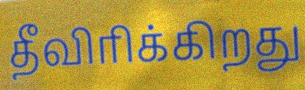
தீவிரிக்கிறது